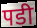
पडी